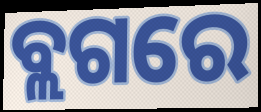
ବ୍ଲଗରେ